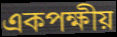
একপক্ষীয়